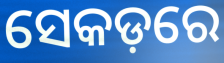
ସେକଡ଼ରେ